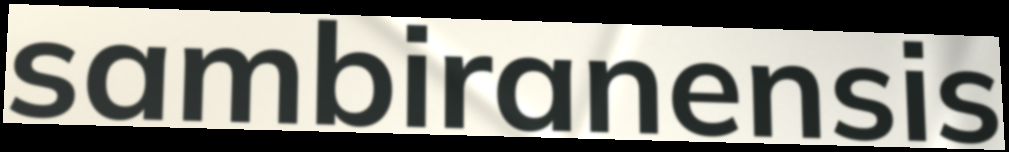
sambiranensis